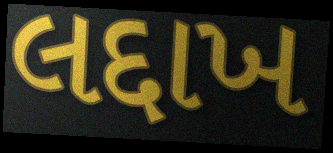
લદ્દાખ